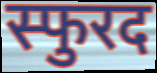
स्फुरद